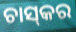
ଚାସ୍‌କର